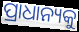
ପ୍ରାଧାନ୍ୟକୁ